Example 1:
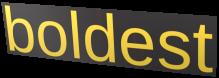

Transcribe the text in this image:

boldest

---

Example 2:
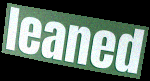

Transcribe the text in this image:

leaned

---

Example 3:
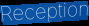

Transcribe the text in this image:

Reception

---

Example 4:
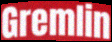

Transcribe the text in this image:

Gremlin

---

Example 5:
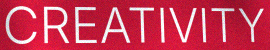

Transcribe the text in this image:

CREATIVITY